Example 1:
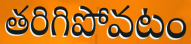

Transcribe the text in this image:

తరిగిపోవటం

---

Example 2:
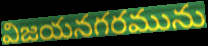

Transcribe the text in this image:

విజయనగరమును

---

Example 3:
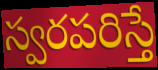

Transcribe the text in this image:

స్వరపరిస్తే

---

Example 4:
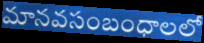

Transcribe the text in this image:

మానవసంబంధాలలో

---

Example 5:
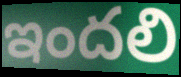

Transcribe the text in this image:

ఇందలి